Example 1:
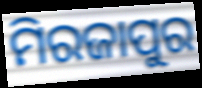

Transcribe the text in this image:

ମିରଜାପୁର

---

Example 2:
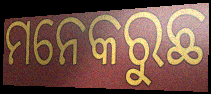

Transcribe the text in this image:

ମନେକରୁଛ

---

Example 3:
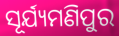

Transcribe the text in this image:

ସୂର୍ଯ୍ୟମଣିପୁର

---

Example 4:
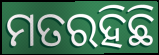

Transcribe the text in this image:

ମତରହିଛି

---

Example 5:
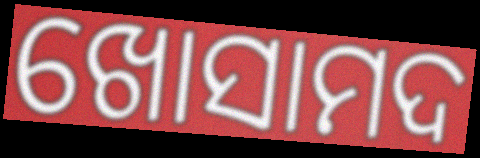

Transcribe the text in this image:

ଖୋସାମଦ